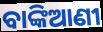
ବାଙ୍କିଆଣୀ